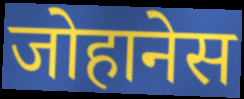
जोहानेस